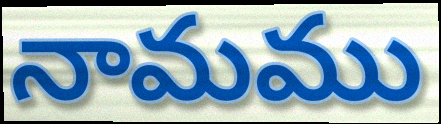
నామము